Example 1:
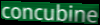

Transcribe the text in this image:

concubine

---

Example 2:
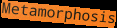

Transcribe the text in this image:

Metamorphosis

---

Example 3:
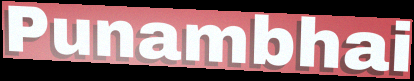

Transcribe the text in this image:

Punambhai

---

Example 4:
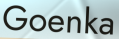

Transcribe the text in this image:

Goenka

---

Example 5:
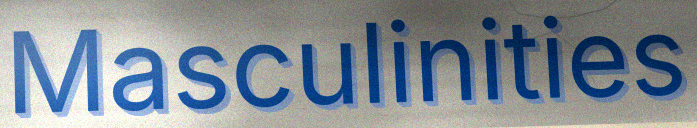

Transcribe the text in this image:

Masculinities